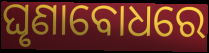
ଘୃଣାବୋଧରେ